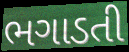
ભગાડતી